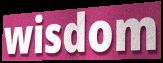
wisdom